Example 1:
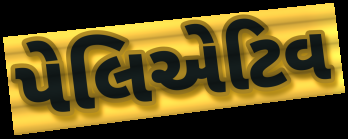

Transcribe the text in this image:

પેલિએટિવ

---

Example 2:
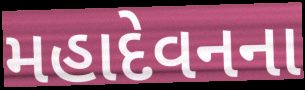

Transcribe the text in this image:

મહાદેવનના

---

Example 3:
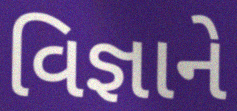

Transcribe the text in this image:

વિજ્ઞાને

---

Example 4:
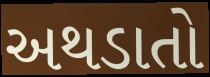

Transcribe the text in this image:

અથડાતો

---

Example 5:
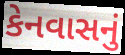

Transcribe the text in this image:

કેનવાસનું